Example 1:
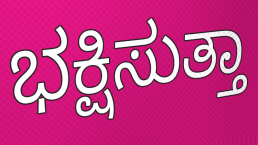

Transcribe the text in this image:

ಭಕ್ಷಿಸುತ್ತಾ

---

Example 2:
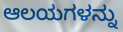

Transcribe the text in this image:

ಆಲಯಗಳನ್ನು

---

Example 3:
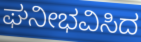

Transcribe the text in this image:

ಘನೀಭವಿಸಿದ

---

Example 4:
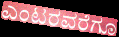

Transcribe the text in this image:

ಎಂಟರವರೆಗೂ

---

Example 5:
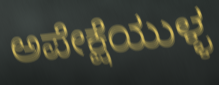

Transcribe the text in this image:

ಅಪೇಕ್ಷೆಯುಳ್ಳ